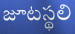
జూటస్థలి